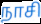
நாசி